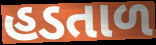
હડતાળ